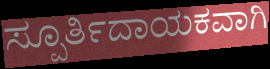
ಸ್ಪೂರ್ತಿದಾಯಕವಾಗಿ